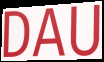
DAU